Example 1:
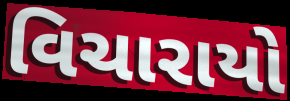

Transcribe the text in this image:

વિચારાયો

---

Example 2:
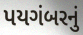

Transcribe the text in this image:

પયગંબરનું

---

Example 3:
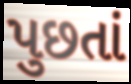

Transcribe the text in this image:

પુછતાં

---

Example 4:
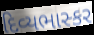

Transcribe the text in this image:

દિવ્યભાસ્કર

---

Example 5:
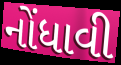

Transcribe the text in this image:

નોંધાવી